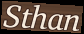
Sthan